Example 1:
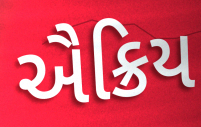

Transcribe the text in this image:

ઐક્રિય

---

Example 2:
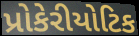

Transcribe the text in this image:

પ્રોકેરીયોટિક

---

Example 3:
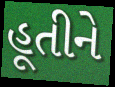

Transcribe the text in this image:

હૂતીને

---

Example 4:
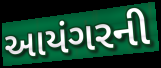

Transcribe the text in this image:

આયંગરની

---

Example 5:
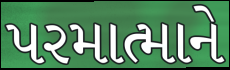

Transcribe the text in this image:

પરમાત્માને